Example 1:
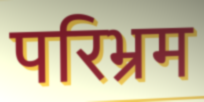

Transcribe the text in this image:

परिभ्रम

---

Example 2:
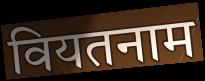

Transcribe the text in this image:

वियतनाम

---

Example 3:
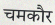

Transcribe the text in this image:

चमकौर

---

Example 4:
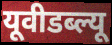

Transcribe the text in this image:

यूवीडब्ल्यू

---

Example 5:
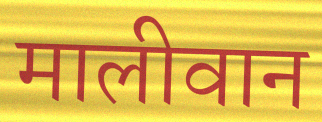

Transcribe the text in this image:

मालीवान